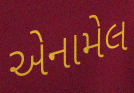
એનામેલ